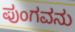
ಪುಂಗವನು